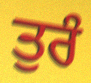
ਤੁਰੰ